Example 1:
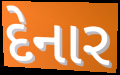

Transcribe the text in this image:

દેનાર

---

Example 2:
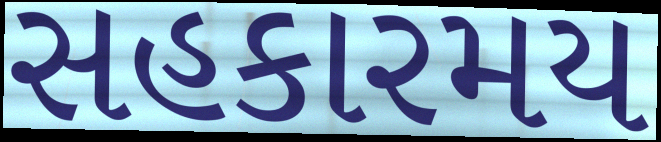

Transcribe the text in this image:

સહકારમય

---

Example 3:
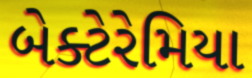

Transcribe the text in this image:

બેક્ટેરેમિયા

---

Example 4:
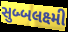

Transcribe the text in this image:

સુબ્બલક્ષ્મી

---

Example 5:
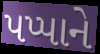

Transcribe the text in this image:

પપ્પાને